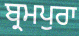
ਬ੍ਰਮਪੁਰਾ